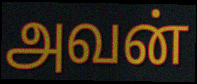
அவன்